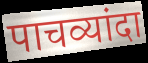
पाचव्यांदा